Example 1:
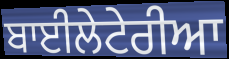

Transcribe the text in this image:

ਬਾਈਲੇਟੇਰੀਆ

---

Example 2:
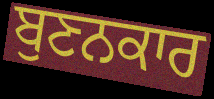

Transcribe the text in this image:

ਬੁਣਨਕਾਰ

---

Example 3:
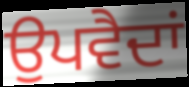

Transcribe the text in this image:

ਉਪਵੈਦਾਂ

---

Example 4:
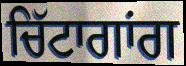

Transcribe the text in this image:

ਚਿੱਟਾਗਾਂਗ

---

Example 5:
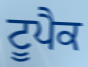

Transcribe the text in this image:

ਟੂਪੈਕ